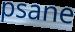
psane